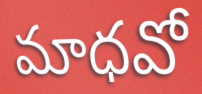
మాధవో